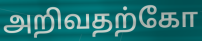
அறிவதற்கோ